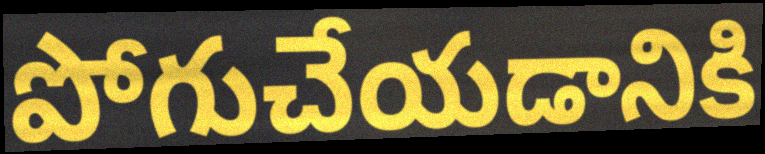
పోగుచేయడానికి